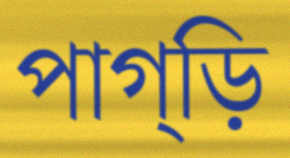
পাগ্ড়ি